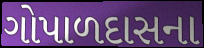
ગોપાળદાસના